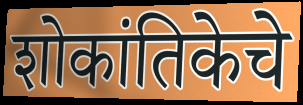
शोकांतिकेचे